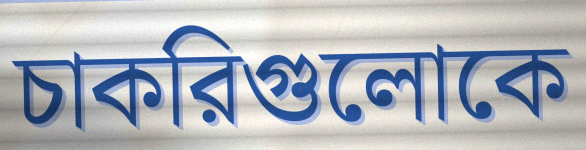
চাকরিগুলোকে